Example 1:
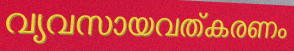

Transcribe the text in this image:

വ്യവസായവത്കരണം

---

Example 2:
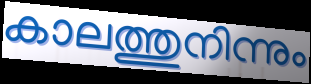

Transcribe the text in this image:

കാലത്തുനിന്നും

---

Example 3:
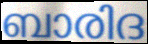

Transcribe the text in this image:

ബാരിദ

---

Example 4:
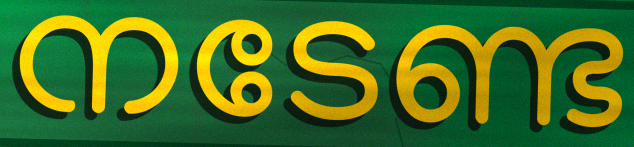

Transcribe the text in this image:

നടേണ്ട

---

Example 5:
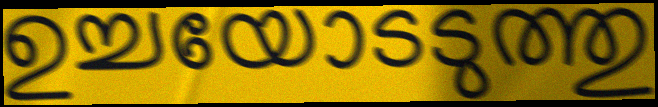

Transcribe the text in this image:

ഉച്ചയോടടുത്തു